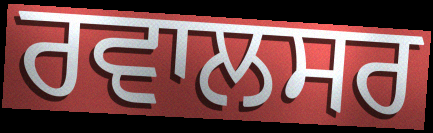
ਰਵਾਲਸਰ